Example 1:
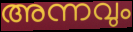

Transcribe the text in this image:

അന്നവും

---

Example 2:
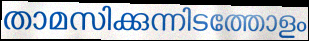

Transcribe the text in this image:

താമസിക്കുന്നിടത്തോളം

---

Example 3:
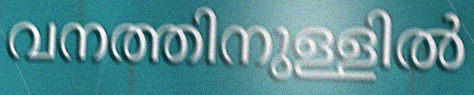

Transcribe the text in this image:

വനത്തിനുള്ളിൽ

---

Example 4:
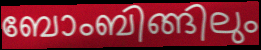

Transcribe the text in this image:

ബോംബിങ്ങിലും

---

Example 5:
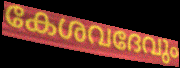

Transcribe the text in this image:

കേശവദേവും